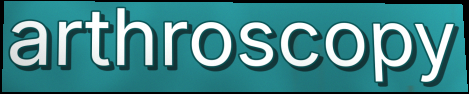
arthroscopy